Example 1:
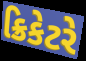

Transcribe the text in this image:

ક્રિકેટરે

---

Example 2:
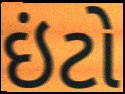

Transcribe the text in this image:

ઇંટો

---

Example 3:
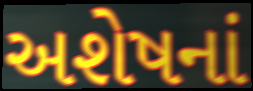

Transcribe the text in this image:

અશેષનાં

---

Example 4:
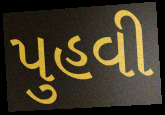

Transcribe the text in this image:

પુહવી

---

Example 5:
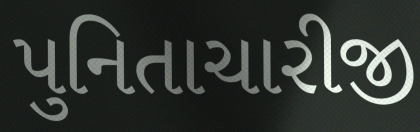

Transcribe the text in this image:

પુનિતાચારીજી